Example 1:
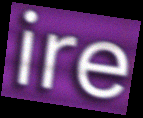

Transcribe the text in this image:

ire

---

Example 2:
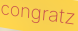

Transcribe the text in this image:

congratz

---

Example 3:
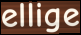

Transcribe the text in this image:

ellige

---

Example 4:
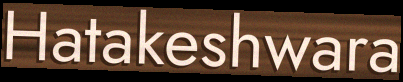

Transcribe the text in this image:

Hatakeshwara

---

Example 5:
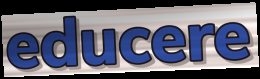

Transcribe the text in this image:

educere